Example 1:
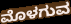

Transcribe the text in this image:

ಮೊಳಗುವ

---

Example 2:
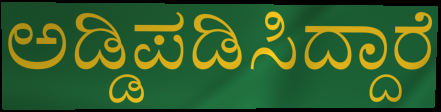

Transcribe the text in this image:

ಅಡ್ಡಿಪಡಿಸಿದ್ದಾರೆ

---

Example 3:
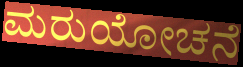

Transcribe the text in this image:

ಮರುಯೋಚನೆ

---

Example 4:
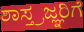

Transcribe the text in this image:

ಶಾಸ್ತ್ರಜ್ಞರಿಗೆ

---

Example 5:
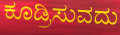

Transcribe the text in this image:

ಕೂಡ್ರಿಸುವದು